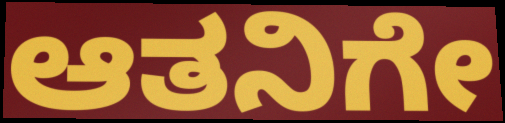
ಆತನಿಗೇ